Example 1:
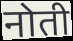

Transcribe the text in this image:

नोती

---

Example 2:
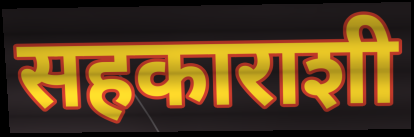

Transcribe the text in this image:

सहकाराशी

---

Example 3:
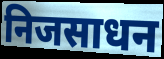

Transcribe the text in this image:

निजसाधन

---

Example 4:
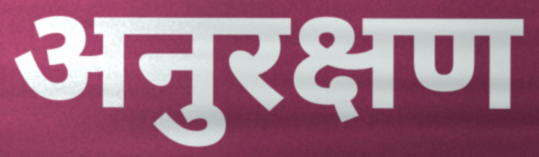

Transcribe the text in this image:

अनुरक्षण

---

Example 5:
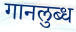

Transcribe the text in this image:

गानलुब्ध